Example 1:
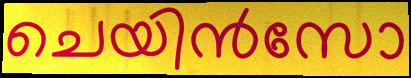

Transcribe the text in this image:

ചെയിൻസോ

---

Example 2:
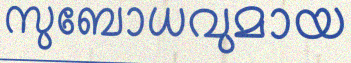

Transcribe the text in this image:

സുബോധവുമായ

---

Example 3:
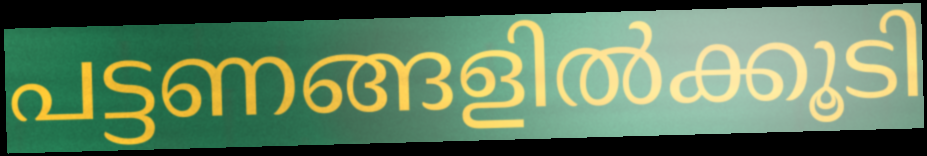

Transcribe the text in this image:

പട്ടണങ്ങളിൽക്കൂടി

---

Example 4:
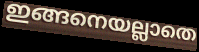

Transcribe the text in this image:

ഇങ്ങനെയല്ലാതെ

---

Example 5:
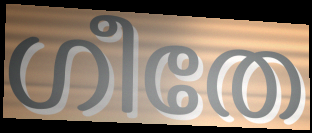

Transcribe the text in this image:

ഗീതേ